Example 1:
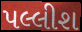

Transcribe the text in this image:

પલ્લીશ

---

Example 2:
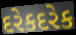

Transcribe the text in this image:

દરેકદરેક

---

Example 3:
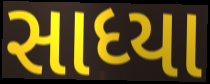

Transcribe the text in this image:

સાધ્યા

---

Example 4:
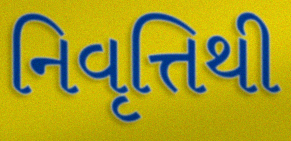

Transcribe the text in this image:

નિવૃત્તિથી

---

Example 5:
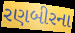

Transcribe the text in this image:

રણબીરના